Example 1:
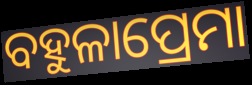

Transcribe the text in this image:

ବହୁଳାପ୍ରେମା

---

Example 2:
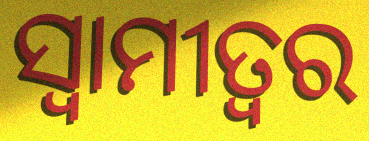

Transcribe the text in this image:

ସ୍ୱାମୀତ୍ୱର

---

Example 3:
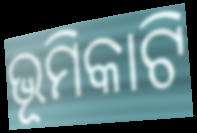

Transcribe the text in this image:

ଭୂମିକାଟି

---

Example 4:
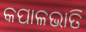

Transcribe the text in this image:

କପାଳଭାତି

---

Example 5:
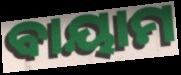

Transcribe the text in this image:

ବାୟାମ